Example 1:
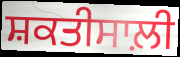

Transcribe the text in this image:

ਸ਼ਕਤੀਸਾਲ਼ੀ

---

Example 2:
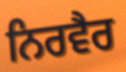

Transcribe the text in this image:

ਨਿਰਵੈਰ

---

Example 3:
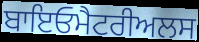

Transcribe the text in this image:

ਬਾਇਓਮੈਟਰੀਅਲਸ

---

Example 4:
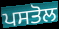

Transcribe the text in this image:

ਪਸਤੋਲ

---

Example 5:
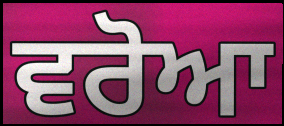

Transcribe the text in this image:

ਵਰੋਆ